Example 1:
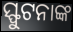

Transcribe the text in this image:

ସ୍ଫୁଟନାଙ୍କ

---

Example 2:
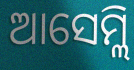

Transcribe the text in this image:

ଆସେମ୍ଲି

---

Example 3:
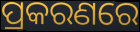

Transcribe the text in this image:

ପ୍ରକରଣରେ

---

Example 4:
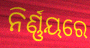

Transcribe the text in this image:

ନିର୍ଣ୍ଣୟରେ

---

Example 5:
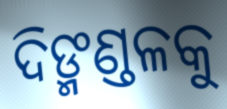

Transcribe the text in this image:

ଦିଙ୍ମଣ୍ଡଳକୁ